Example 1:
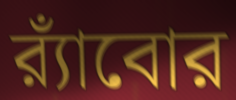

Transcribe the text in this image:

র‍্যাঁবোর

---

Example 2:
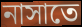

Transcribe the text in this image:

নাসাতে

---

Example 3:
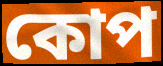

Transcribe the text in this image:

কোপ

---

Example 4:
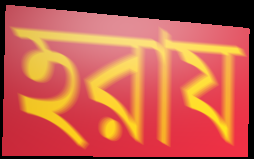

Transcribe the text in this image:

হরায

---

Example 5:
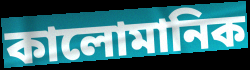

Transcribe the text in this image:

কালোমানিক